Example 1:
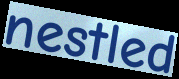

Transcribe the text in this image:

nestled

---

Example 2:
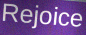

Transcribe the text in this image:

Rejoice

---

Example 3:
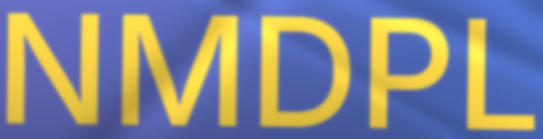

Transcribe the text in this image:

NMDPL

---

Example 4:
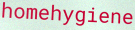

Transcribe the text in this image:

homehygiene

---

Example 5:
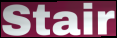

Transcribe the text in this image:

Stair